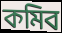
কমিব